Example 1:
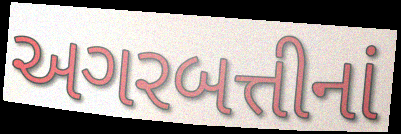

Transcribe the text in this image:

અગરબત્તીનાં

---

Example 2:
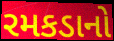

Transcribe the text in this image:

રમકડાનો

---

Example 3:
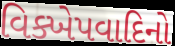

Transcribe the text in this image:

વિક્ખેપવાદિનો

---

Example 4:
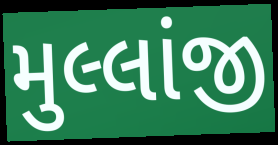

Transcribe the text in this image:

મુલ્લાંજી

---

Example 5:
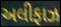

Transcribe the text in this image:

અલીફાઝ